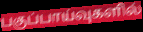
பகுப்பாய்வுகளில்